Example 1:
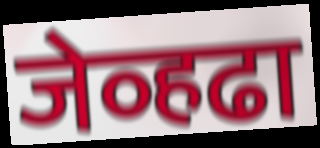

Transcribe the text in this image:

जेव्हढा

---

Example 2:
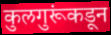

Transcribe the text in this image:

कुलगुरूंकडून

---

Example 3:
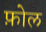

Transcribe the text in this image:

फ़ोल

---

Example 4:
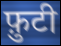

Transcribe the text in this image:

फ़ुटी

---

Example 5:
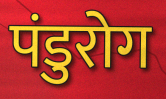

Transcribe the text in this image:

पंडुरोग